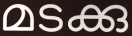
മടക്കു